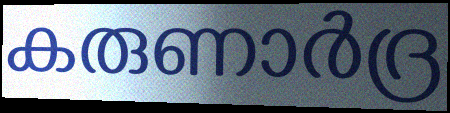
കരുണാർദ്ര